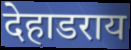
देहाडराय